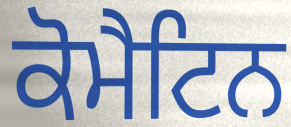
ਕੋਮੈਟਿਨ